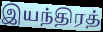
இயந்திரத்